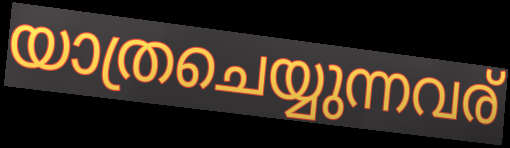
യാത്രചെയ്യുന്നവര്